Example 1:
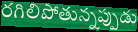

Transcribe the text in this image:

రగిలిపోతున్నప్పుడు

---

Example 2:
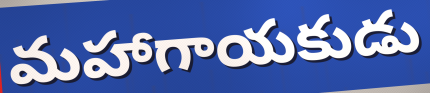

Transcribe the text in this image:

మహాగాయకుడు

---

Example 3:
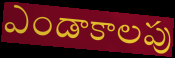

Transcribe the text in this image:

ఎండాకాలపు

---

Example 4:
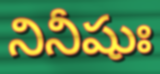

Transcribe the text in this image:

నినీషుః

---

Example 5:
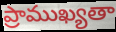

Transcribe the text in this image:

ప్రాముఖ్యతా